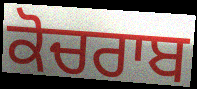
ਕੋਚਰਾਬ